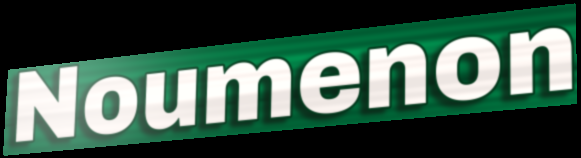
Noumenon